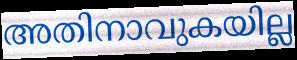
അതിനാവുകയില്ല